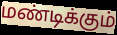
மண்டிக்கும்